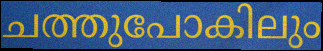
ചത്തുപോകിലും